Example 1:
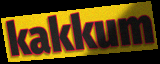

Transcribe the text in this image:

kakkum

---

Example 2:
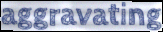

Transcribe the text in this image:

aggravating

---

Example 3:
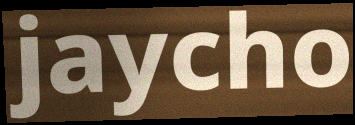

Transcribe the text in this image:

jaycho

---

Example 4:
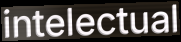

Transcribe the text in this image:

intelectual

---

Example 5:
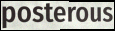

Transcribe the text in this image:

posterous